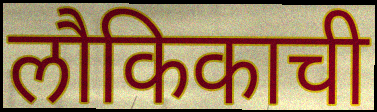
लौकिकाची